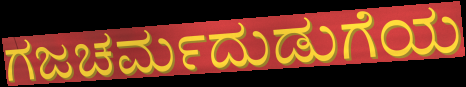
ಗಜಚರ್ಮದುಡುಗೆಯ